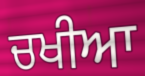
ਚਖੀਆ